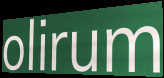
olirum